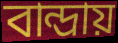
বান্দ্রায়